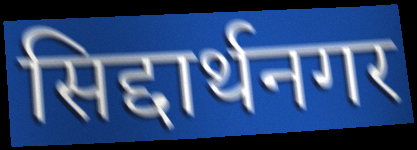
सिद्दार्थनगर